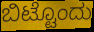
ಬಿಟ್ಟೊಂದು